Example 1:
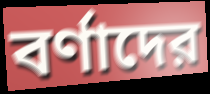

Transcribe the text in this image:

বর্ণাদের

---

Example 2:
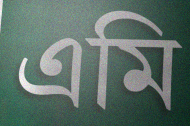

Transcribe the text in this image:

এমি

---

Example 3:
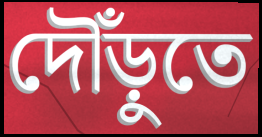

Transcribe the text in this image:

দৌঁড়ুতে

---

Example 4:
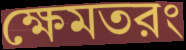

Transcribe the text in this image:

ক্ষেমতরং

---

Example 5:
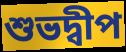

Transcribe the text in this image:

শুভদ্বীপ